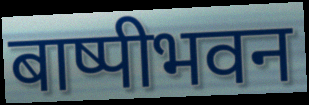
बाष्पीभवन